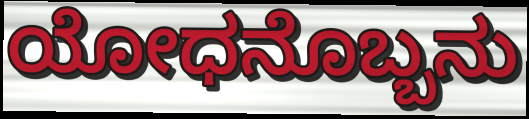
ಯೋಧನೊಬ್ಬನು